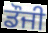
ਡੌਜੀ